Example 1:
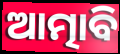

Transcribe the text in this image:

ଆତ୍ମାବି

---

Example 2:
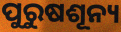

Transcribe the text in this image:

ପୁରୁଷଶୂନ୍ୟ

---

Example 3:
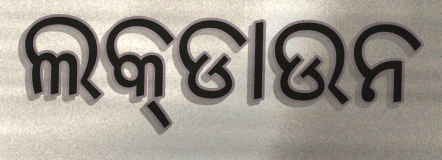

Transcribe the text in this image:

ଲକ୍‌ଡାଉନ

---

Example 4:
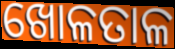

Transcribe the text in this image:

ଖୋଳତାଳ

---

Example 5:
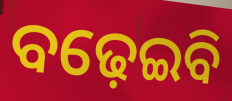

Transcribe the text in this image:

ବଢ଼େଇବି